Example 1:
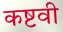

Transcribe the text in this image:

कष्टवी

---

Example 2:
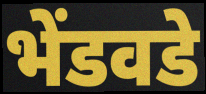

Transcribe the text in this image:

भेंडवडे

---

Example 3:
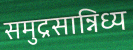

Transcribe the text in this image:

समुद्रसान्निध्य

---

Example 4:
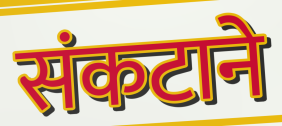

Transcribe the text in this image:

संकटाने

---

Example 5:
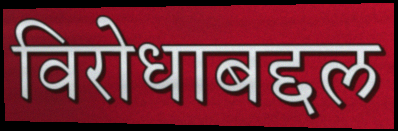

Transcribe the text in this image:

विरोधाबद्दल